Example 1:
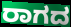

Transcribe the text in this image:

ರಾಗದ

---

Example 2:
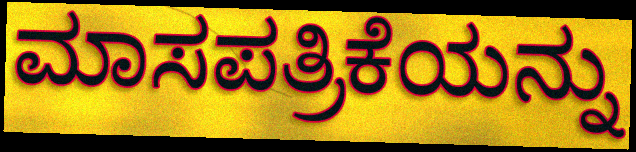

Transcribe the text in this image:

ಮಾಸಪತ್ರಿಕೆಯನ್ನು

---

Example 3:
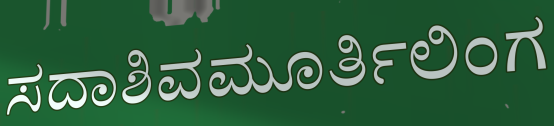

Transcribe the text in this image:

ಸದಾಶಿವಮೂರ್ತಿಲಿಂಗ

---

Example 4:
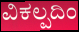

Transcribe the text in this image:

ವಿಕಲ್ಪದಿಂ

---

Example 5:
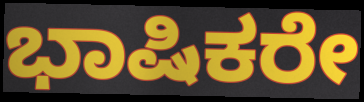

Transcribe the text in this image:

ಭಾಷಿಕರೇ